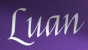
Luan